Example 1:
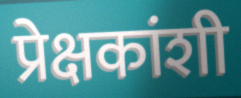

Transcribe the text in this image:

प्रेक्षकांशी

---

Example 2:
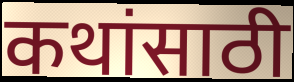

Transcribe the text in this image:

कथांसाठी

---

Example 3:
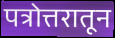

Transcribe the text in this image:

पत्रोत्तरातून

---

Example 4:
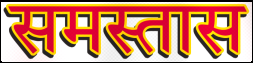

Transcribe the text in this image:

समस्तास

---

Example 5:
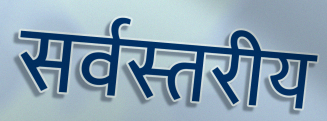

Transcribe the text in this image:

सर्वस्तरीय